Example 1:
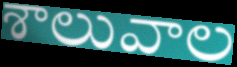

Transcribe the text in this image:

శాలువాల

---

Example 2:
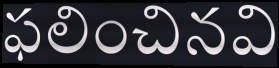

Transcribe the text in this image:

ఫలించినవి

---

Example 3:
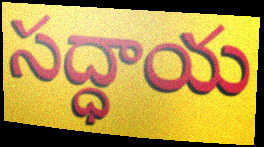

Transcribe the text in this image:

సద్ధాయ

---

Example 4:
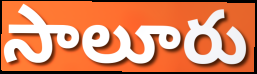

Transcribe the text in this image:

సాలూరు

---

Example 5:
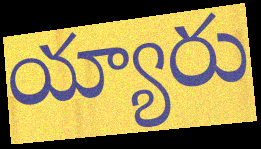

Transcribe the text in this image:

య్యారు